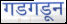
गडगडून